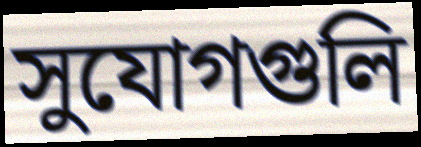
সুযোগগুলি